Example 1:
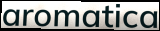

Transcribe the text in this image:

aromatica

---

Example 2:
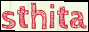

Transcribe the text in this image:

sthita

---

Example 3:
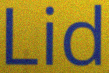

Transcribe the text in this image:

Lid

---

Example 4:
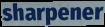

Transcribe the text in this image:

sharpener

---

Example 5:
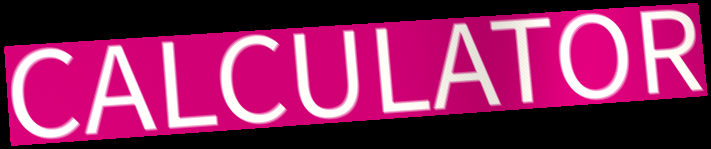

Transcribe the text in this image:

CALCULATOR